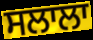
ਸਲਾਲਾ